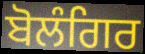
ਬੋਲੰਗਿਰ